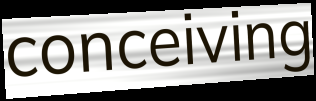
conceiving